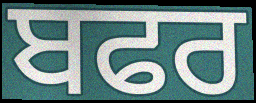
ਬਫਰ